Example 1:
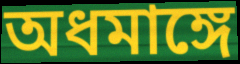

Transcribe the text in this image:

অধমাঙ্গে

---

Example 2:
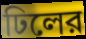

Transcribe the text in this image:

ঢিলের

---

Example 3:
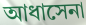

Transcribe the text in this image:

আধাসেনা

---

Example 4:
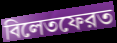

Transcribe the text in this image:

বিলেতফেরত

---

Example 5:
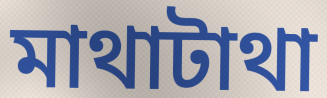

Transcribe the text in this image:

মাথাটাথা